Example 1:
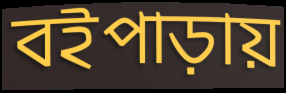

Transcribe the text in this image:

বইপাড়ায়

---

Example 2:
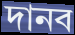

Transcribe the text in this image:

দানব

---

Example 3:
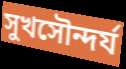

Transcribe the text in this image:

সুখসৌন্দর্য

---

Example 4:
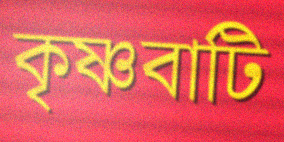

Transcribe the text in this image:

কৃষ্ণবাটি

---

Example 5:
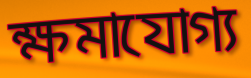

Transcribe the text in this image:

ক্ষমাযোগ্য